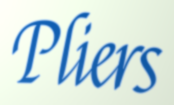
Pliers